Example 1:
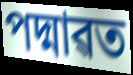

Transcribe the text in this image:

পদ্মাৱত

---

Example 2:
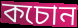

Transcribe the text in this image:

কচোন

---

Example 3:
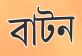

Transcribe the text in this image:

বাটন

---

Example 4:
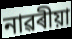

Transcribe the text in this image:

নাৱৰীয়া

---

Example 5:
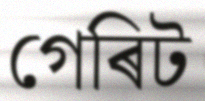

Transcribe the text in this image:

গেৰিট